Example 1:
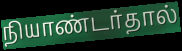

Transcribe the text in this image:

நியாண்டர்தால்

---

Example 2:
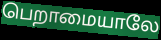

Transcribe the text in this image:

பெறாமையாலே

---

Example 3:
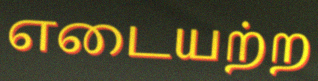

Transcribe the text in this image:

எடையற்ற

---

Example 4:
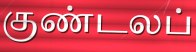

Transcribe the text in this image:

குண்டலப்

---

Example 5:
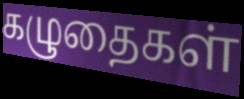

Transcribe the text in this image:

கழுதைகள்